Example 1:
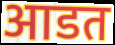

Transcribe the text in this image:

आडत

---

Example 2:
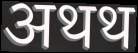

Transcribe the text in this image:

अथथ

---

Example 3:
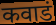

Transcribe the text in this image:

कवाडं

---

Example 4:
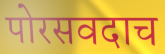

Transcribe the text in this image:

पोरसवदाच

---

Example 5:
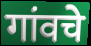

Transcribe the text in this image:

गांवचे